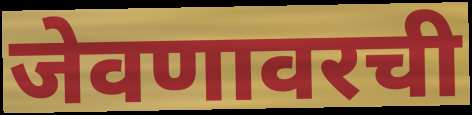
जेवणावरची